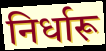
निर्धारू